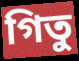
গিতু